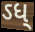
ઽધ્